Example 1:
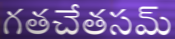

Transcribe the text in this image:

గతచేతసమ్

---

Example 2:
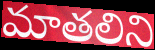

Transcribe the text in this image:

మాతలిని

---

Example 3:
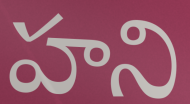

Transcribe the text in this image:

హని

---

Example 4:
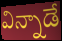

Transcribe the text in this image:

విన్నాడే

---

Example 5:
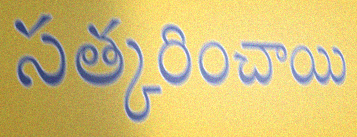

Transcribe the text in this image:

సత్కరించాయి